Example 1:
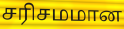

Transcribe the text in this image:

சரிசமமான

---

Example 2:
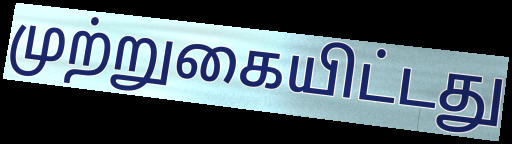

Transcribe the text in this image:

முற்றுகையிட்டது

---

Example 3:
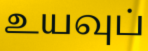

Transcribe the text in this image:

உயவுப்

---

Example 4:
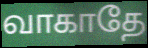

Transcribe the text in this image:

வாகாதே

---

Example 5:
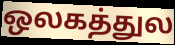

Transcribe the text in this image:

ஒலகத்துல